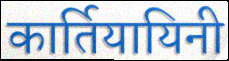
कार्तियायिनी